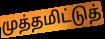
முத்தமிட்டுத்